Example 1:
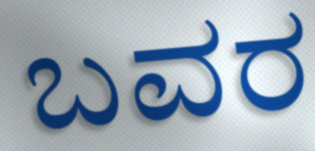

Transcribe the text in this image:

ಬವರ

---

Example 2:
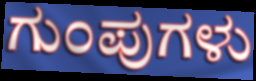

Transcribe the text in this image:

ಗುಂಪುಗಳು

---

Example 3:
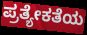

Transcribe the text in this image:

ಪ್ರತ್ಯೇಕತೆಯ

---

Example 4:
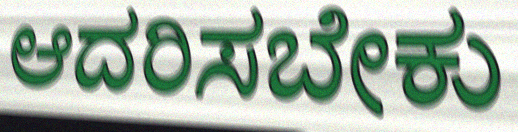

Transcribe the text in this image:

ಆದರಿಸಬೇಕು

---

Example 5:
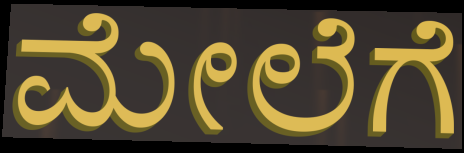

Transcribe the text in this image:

ಮೇಲೆಗೆ